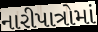
નારીપાત્રોમાં